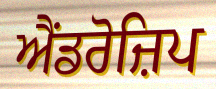
ਐਂਡਰੋਜ਼ਿਪ